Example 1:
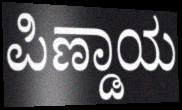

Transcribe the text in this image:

ಪಿಣ್ಡಾಯ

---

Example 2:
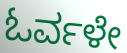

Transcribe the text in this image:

ಓರ್ವಳೇ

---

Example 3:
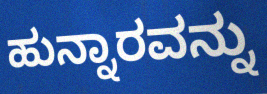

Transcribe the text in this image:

ಹುನ್ನಾರವನ್ನು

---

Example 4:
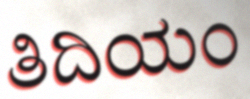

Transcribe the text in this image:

ತಿದಿಯಂ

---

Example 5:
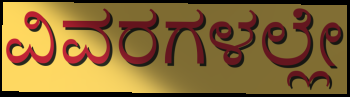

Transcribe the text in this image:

ವಿವರಗಳಲ್ಲೇ